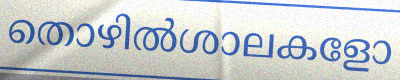
തൊഴിൽശാലകളോ